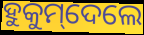
ହୁକୁମ୍‌ଦେଲେ